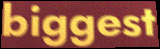
biggest